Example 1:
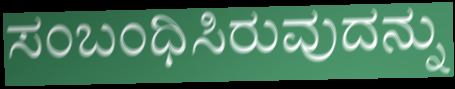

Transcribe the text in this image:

ಸಂಬಂಧಿಸಿರುವುದನ್ನು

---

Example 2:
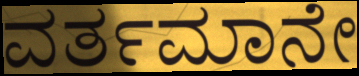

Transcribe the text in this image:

ವರ್ತಮಾನೇ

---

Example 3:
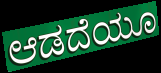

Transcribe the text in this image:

ಆಡದೆಯೂ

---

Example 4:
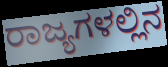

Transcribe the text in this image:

ರಾಜ್ಯಗಳಲ್ಲಿನ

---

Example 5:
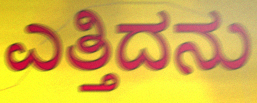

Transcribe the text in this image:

ಎತ್ತಿದನು